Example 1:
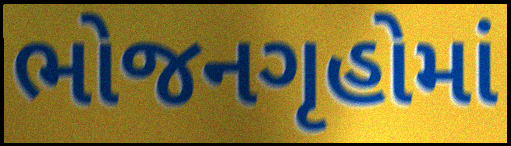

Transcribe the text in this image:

ભોજનગૃહોમાં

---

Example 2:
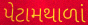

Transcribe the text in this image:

પેટામથાળાં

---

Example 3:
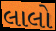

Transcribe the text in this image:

લાલો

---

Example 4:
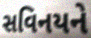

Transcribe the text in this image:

સવિનયને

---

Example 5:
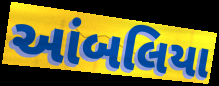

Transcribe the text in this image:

આંબલિયા